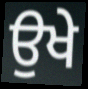
ਉਖੇ